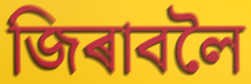
জিৰাবলৈ